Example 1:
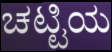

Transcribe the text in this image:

ಚಟ್ಟಿಯ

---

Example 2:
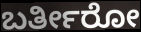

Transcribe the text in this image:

ಬರ್ತೀರೋ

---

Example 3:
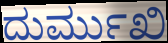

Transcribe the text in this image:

ದುರ್ಮುಖಿ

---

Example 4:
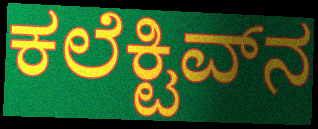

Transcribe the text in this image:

ಕಲೆಕ್ಟಿವ್‌ನ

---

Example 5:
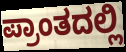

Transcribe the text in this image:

ಪ್ರಾಂತದಲ್ಲಿ